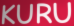
KURU